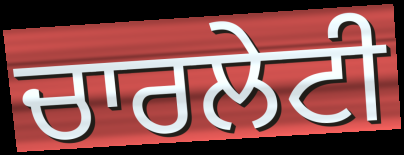
ਚਾਰਲੇਟੀ